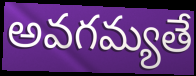
అవగమ్యతే